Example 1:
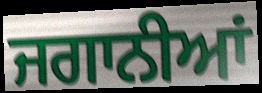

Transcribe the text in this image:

ਜਗਾਨੀਆਂ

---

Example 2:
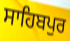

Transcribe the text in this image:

ਸਾਹਿਬਪੁਰ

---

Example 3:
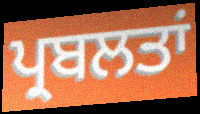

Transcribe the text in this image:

ਪ੍ਰਬਲਤਾਂ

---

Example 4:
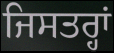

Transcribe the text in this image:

ਜਿਸਤਰ੍ਹਾਂ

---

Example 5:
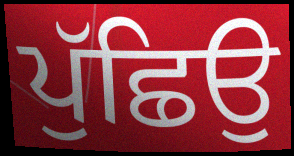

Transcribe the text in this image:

ਪੁੱਛਿਉ